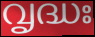
വൃദ്ധഃ